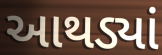
આથડ્યાં